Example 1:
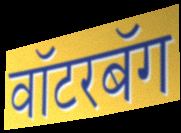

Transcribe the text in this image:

वॉटरबॅग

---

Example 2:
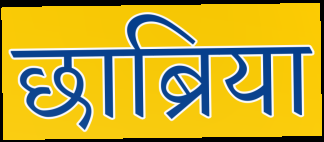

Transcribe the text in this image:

छाब्रिया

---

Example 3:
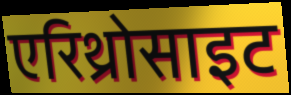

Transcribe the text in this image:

एरिथ्रोसाइट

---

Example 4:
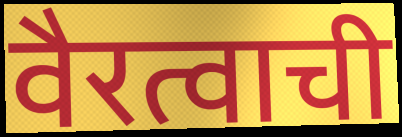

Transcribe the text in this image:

वैरत्वाची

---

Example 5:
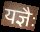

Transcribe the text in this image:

यज्ञैः